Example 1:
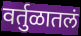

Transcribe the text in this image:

वर्तुळातलं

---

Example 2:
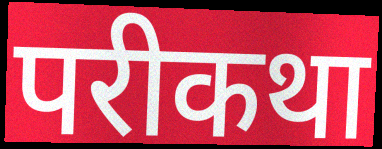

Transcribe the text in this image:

परीकथा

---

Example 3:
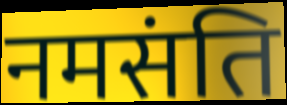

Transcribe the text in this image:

नमसंति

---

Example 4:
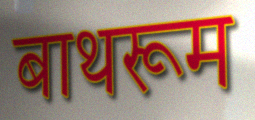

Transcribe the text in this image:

बाथरूम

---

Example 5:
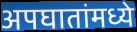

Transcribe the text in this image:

अपघातांमध्ये